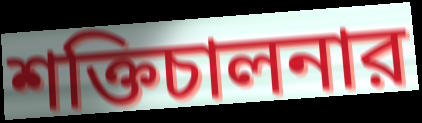
শক্তিচালনার